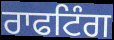
ਰਾਫਟਿੰਗ